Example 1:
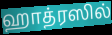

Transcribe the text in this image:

ஹாத்ரஸில்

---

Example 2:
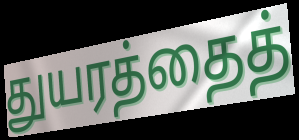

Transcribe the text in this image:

துயரத்தைத்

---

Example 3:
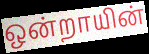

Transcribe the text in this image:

ஒன்றாயின்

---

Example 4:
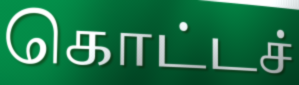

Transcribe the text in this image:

கொட்டச்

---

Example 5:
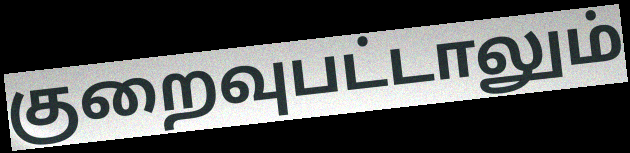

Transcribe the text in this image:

குறைவுபட்டாலும்